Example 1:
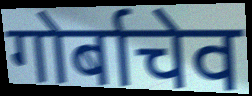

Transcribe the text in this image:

गोर्बाचेव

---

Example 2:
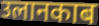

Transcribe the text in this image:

उलानकाब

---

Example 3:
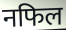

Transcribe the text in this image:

नफिल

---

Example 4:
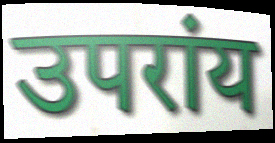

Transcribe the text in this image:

उपरांय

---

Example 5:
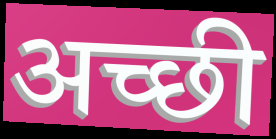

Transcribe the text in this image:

अच्‍छी